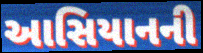
આસિયાનની